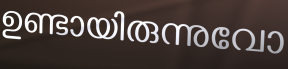
ഉണ്ടായിരുന്നുവോ